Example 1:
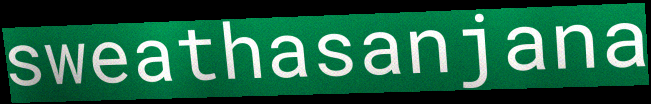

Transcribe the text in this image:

sweathasanjana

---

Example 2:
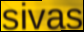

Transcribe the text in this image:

sivas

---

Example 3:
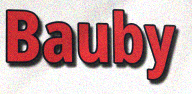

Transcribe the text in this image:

Bauby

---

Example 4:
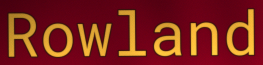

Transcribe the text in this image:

Rowland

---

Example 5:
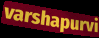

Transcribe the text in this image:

varshapurvi